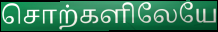
சொற்களிலேயே